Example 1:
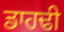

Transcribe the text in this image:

ਡਾਹਢੀ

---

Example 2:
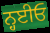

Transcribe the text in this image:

ਨ੍ਹਈਓ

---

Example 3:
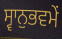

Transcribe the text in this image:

ਸ੍ਵਾਨੁਭਵਮੇਂ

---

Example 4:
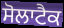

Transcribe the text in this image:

ਸੋਲਾਟੈਕ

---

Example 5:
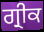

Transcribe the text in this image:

ਗ੍ਰੀਕ